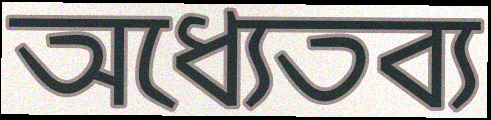
অধ্যেতব্য